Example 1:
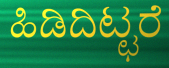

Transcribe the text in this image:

ಹಿಡಿದಿಟ್ಟರೆ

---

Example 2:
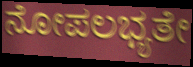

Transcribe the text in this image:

ನೋಪಲಭ್ಯತೇ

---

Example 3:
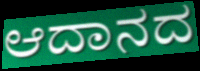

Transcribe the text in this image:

ಆದಾನದ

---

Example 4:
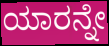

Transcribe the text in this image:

ಯಾರನ್ನೇ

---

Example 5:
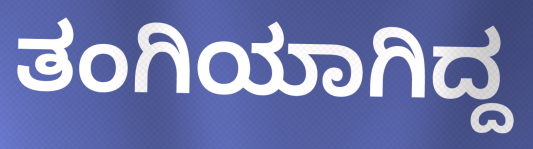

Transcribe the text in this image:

ತಂಗಿಯಾಗಿದ್ದ